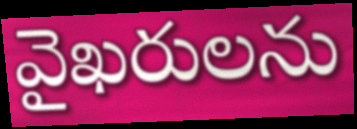
వైఖరులను